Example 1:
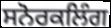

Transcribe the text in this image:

ਸਨੋਰਕਲਿੰਗ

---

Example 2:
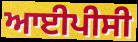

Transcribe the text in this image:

ਆਈਪੀਸੀ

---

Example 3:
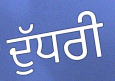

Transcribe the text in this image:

ਦੁੱਧਰੀ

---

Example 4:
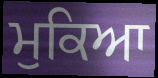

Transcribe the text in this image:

ਮੁਕਿਆ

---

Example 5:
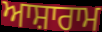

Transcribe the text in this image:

ਆਸ਼ਾਰਾਮ